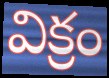
విక్రం